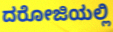
ದರೋಜಿಯಲ್ಲಿ